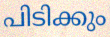
പിടിക്കും